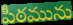
పీఠమును